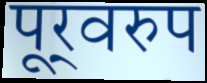
पूर्वरुप